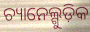
ଚ୍ୟାନେଲ୍ଗୁଡ଼ିକ